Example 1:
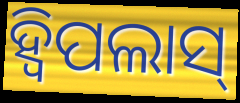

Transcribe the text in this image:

ହ୍ୱିପଲାସ୍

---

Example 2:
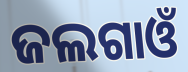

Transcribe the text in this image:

ଜଲଗାଓଁ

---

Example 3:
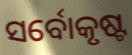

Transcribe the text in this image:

ସର୍ବୋକୃଷ୍ଟ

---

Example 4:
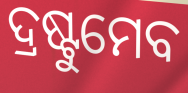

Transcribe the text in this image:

ଦ୍ରଷ୍ଟୁମେବ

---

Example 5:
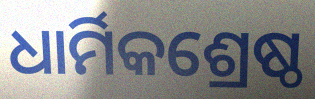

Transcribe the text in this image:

ଧାର୍ମିକଶ୍ରେଷ୍ଠ